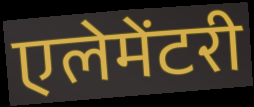
एलेमेंटरी